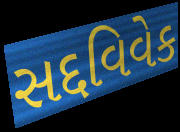
સદ્દવિવેક